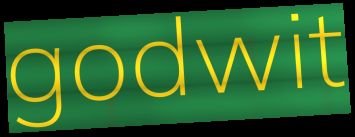
godwit